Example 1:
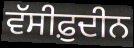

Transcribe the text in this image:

ਵੱਸੀਫ਼ੁਦੀਨ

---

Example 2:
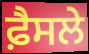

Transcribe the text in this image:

ਫ਼ੈਸਲੇ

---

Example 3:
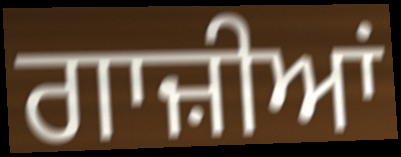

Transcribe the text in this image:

ਗਾਜ਼ੀਆਂ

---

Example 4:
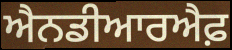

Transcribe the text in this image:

ਐਨਡੀਆਰਐਫ਼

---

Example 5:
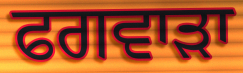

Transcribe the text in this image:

ਫਗਵਾੜਾ